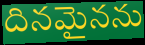
దినమైనను